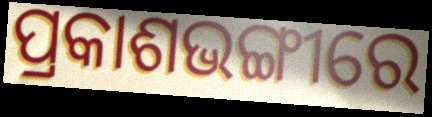
ପ୍ରକାଶଭଙ୍ଗୀରେ